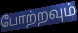
போற்றவும்